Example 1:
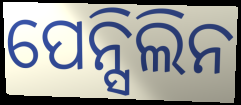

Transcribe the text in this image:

ପେନ୍ସିଲିନ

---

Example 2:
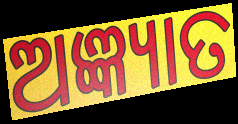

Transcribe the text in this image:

ଅଜ୍ଞ୍ୟାତ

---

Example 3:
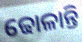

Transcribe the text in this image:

ଢୋଳାନ୍ତି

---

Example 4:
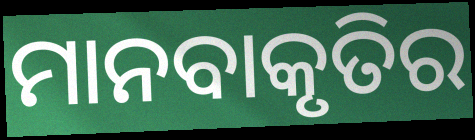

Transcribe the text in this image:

ମାନବାକୃତିର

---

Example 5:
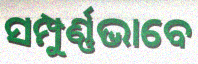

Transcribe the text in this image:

ସମ୍ପୁର୍ଣ୍ଣଭାବେ